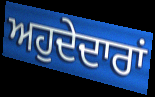
ਅਹੁਦੇਦਾਰਾਂ